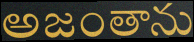
అజంతాను